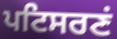
ਪਟਿਸਰਣਂ